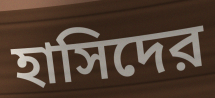
হাসিদের